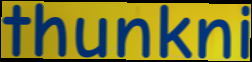
thunkni